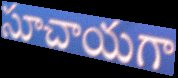
సూచాయగా